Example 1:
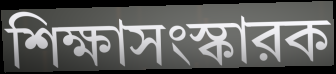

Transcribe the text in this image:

শিক্ষাসংস্কারক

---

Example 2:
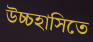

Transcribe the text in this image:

উচ্চহাসিতে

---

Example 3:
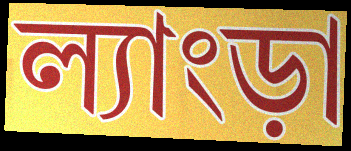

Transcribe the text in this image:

ল্যাংড়া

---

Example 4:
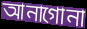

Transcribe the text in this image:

আনাগোনা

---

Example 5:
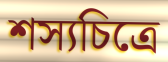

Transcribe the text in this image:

শস্যচিত্রে